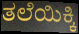
ತಲೆಯಿಕ್ಕಿ